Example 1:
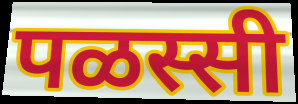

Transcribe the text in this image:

पळस्सी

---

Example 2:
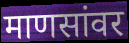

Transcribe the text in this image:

माणसांवर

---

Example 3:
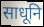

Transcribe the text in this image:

साधूनि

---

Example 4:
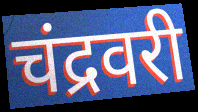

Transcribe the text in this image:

चंद्रवरी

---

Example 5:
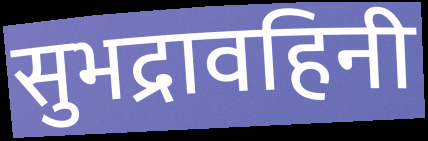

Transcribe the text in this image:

सुभद्रावहिनी